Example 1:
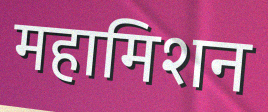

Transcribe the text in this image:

महामिशन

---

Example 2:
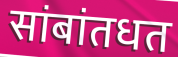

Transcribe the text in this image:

सांबांतधत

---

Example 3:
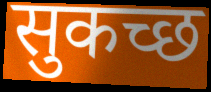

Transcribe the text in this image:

सुकच्छ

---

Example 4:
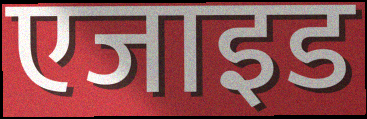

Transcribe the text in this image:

एजाइड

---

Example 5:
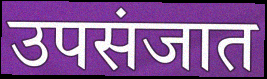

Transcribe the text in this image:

उपसंजात